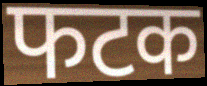
फटक